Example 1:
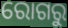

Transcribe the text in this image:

ରୋଗରୁ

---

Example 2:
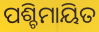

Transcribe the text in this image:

ପଶ୍ଚିମାୟିତ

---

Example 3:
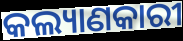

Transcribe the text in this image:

କଲ୍ୟାଣକାରୀ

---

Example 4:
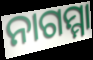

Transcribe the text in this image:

ନାଗମ୍ମା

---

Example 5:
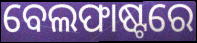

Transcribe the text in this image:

ବେଲଫାଷ୍ଟରେ